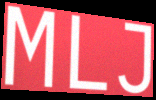
MLJ